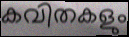
കവിതകളും